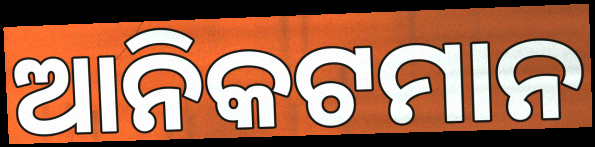
ଆନିକଟମାନ